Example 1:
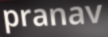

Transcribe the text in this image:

pranav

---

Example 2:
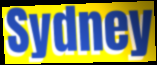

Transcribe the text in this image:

Sydney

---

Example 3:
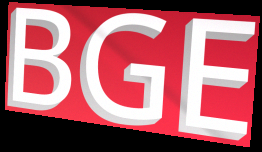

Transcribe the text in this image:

BGE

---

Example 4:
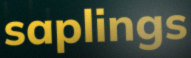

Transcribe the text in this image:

saplings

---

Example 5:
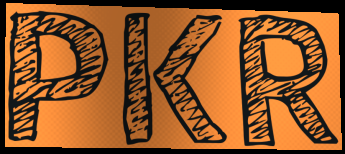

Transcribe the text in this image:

PKR